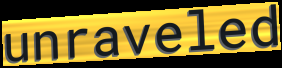
unraveled